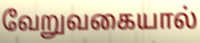
வேறுவகையால்